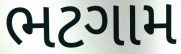
ભટગામ